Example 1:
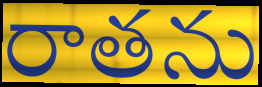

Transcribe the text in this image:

రాతను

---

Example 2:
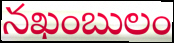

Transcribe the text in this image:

నఖంబులం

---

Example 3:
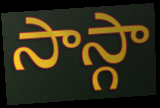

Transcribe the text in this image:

సాస్గా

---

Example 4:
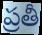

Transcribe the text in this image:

ప్రతీ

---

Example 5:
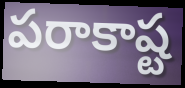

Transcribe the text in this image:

పరాకాష్ట